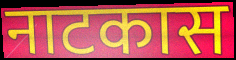
नाटकास